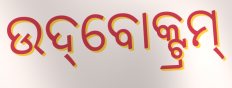
ଉଦ୍‌ବୋକ୍ଟ୍ରମ୍